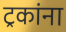
ट्रकांना